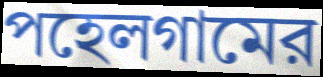
পহেলগামের